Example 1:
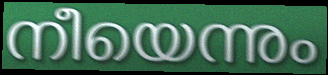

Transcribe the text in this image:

നീയെന്നും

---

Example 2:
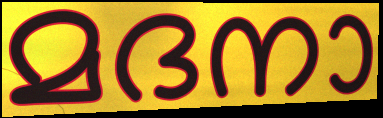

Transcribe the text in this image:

മദനാ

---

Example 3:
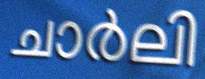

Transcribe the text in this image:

ചാർലി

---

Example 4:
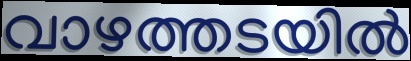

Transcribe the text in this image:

വാഴത്തടയിൽ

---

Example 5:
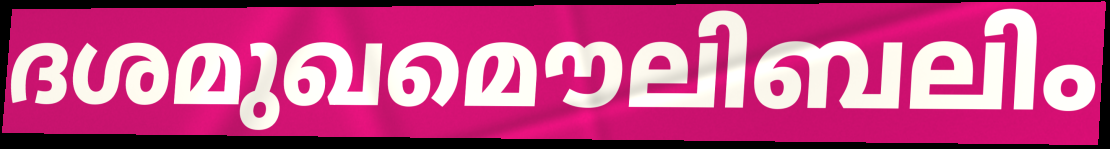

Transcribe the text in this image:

ദശമുഖമൌലിബലിം